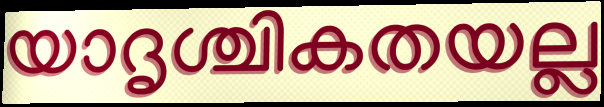
യാദൃശ്ചികതയല്ല